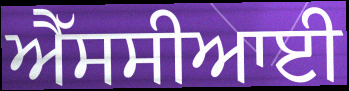
ਐੱਸਸੀਆਈ